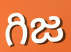
గిజ